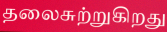
தலைசுற்றுகிறது